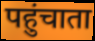
पहुंचाता